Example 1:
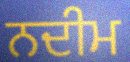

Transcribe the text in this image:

ਨਦੀਮ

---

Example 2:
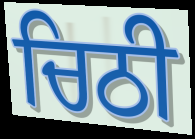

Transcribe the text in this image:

ਚਿਠੀ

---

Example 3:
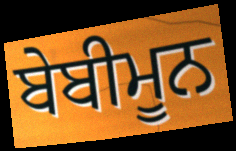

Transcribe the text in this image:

ਬੇਬੀਮੂਨ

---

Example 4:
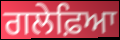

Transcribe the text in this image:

ਗਲੇਫ਼ਿਆ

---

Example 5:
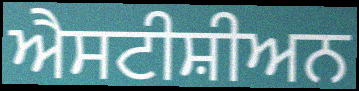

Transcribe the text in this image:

ਐਸਟੀਸ਼ੀਅਨ